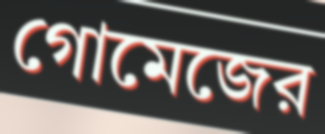
গোমেজের